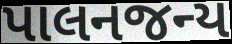
પાલનજન્ય